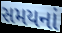
સમયનાં